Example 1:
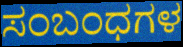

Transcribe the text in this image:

ಸಂಬಂಧಗಳ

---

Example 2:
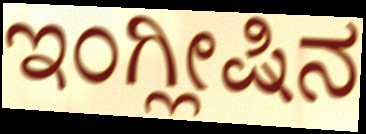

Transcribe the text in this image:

ಇಂಗ್ಲೀಷಿನ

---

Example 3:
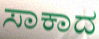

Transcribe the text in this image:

ಸಾಕಾದ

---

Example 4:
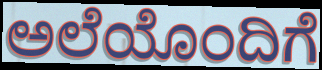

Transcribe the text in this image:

ಅಲೆಯೊಂದಿಗೆ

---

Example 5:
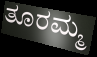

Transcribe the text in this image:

ತೂರಮ್ಮ